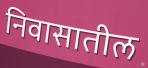
निवासातील